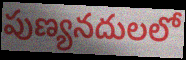
పుణ్యనదులలో